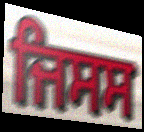
ਜਿਸਸ